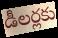
డీలర్లకు